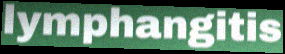
lymphangitis